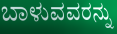
ಬಾಳುವವರನ್ನು